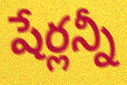
షేర్లన్నీ